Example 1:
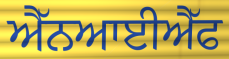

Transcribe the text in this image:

ਐੱਨਆਈਐੱਫ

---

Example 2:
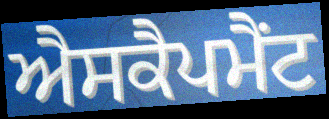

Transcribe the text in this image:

ਐਸਕੈਪਮੈਂਟ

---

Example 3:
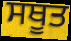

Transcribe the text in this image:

ਸਥੂਤ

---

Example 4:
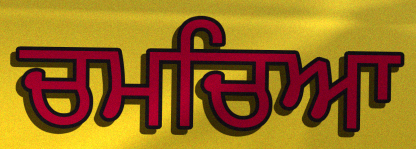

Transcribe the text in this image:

ਚਮਚਿਆ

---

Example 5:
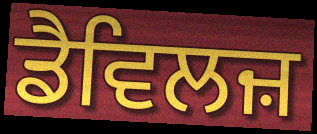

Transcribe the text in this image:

ਡੈਵਿਲਜ਼